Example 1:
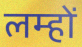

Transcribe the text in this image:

लम्हों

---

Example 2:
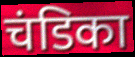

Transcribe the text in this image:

चंडिका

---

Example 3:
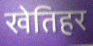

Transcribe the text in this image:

खेतिहर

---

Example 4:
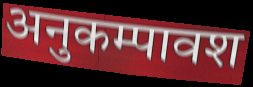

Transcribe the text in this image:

अनुकम्पावश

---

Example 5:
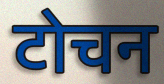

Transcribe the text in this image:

टोचन